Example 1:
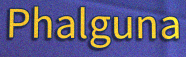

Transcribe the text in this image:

Phalguna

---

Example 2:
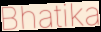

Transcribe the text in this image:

Bhatika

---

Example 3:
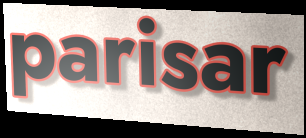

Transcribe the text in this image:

parisar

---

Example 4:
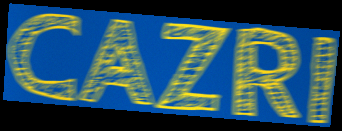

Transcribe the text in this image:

CAZRI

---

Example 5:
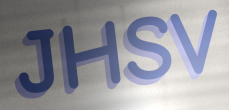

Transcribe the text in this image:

JHSV